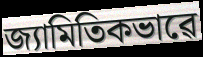
জ্যামিতিকভাৱে